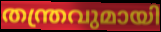
തന്ത്രവുമായി